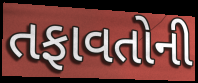
તફાવતોની